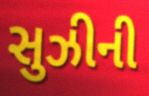
સુઝીની